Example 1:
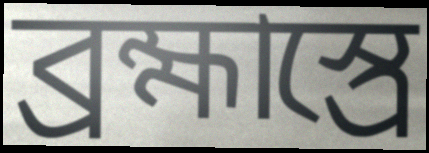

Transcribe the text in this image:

ব্রহ্মাস্ত্রে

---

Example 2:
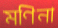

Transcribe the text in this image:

মণিনা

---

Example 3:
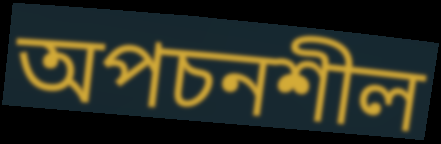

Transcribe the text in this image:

অপচনশীল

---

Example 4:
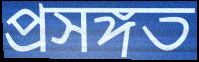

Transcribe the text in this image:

প্রসঙ্গত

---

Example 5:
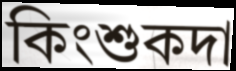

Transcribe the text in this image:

কিংশুকদা